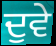
ਦੁਵੇ